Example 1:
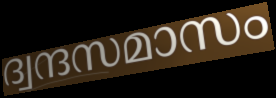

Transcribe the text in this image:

ദ്വന്ദസമാസം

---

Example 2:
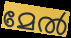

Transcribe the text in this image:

മേൽ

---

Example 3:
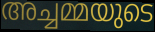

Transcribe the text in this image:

അച്ചമ്മയുടെ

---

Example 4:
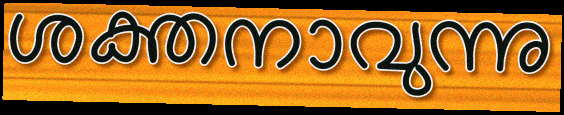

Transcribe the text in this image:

ശക്തനാവുന്നു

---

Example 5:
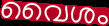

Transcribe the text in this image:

വൈശം